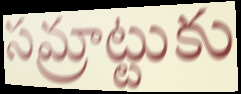
సమ్రాట్టుకు